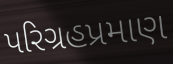
પરિગ્રહપ્રમાણ